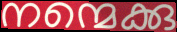
നന്മെക്കു